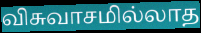
விசுவாசமில்லாத